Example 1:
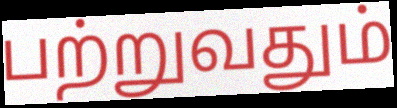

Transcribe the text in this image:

பற்றுவதும்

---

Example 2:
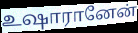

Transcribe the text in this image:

உஷாரானேன்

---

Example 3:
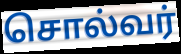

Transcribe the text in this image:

சொல்வர்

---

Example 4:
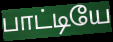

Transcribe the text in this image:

பாட்டியே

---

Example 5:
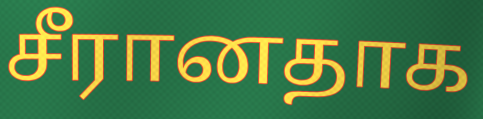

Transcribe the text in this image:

சீரானதாக